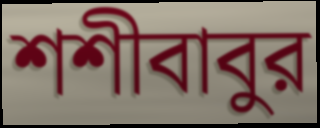
শশীবাবুর